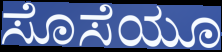
ಸೊಸೆಯೂ